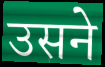
उसने